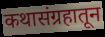
कथासंग्रहातून